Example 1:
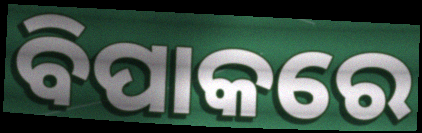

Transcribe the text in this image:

ବିପାକରେ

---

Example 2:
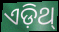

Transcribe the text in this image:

ଏଡ଼ିଥ୍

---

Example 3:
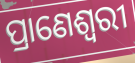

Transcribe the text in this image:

ପ୍ରାଣେଶ୍ୱରୀ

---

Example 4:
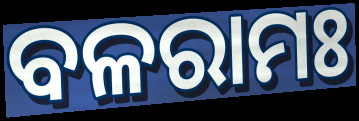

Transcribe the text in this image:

ବଳରାମଃ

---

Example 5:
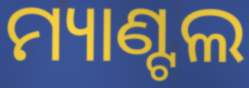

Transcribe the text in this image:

ମ୍ୟାଣ୍ଟଲ